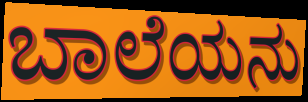
ಬಾಲೆಯನು